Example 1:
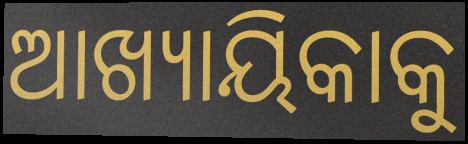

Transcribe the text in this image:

ଆଖ୍ୟାୟିକାକୁ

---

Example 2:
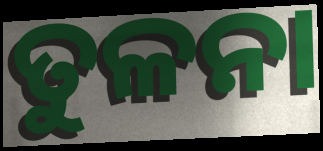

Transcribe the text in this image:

ତୁଳନା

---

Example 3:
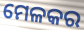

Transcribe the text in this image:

ମେଳକର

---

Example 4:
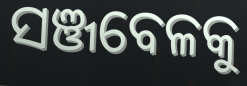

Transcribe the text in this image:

ସଞ୍ଜବେଳକୁ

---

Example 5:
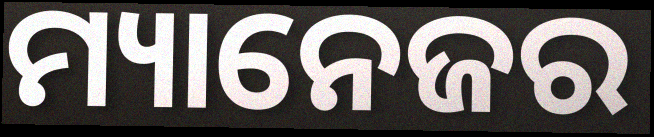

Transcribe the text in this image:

ମ୍ୟାନେଜର